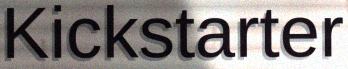
Kickstarter